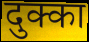
दुक्का